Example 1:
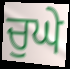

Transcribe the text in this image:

ਚੁਘੇ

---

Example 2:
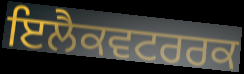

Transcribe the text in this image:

ਇਲੈਕਵਟਰਰਕ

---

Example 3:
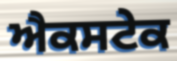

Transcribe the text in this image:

ਐਕਸਟੇਕ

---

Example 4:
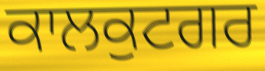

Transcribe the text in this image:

ਕਾਲਕੁਟਗਰ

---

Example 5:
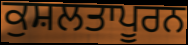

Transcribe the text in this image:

ਕੁਸ਼ਲਤਾਪੂਰਨ